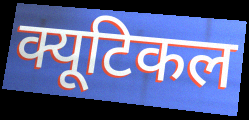
क्यूटिकल